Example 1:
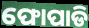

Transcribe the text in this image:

ଫୋପାଡି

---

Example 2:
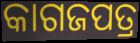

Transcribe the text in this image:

କାଗଜପତ୍ର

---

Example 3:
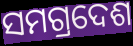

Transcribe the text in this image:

ସମଗ୍ରଦେଶ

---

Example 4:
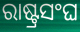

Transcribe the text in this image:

ରାଷ୍ଟ୍ରସଂଘ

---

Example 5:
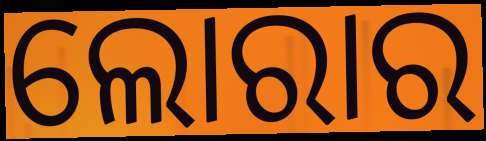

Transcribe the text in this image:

ଲୋରାର